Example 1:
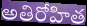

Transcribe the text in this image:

అతిరోహిత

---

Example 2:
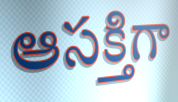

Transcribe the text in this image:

ఆసక్తిగా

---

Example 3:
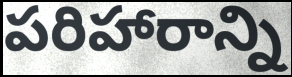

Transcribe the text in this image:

పరిహారాన్ని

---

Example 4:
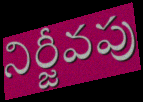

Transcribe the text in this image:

నిర్జీవపు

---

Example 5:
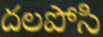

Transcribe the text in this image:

దలపోసి